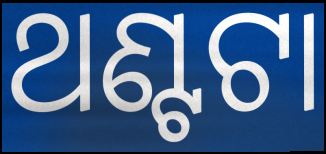
ଥଣ୍ଟଟା